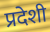
प्रदेशी